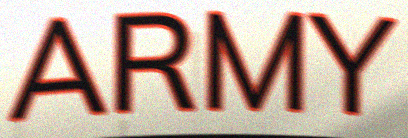
ARMY